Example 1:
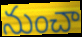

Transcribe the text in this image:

నుంచా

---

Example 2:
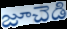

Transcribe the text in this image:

జూచెడి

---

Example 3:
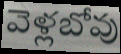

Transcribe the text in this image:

వెళ్లబోవు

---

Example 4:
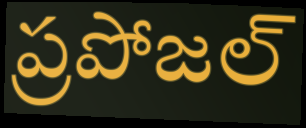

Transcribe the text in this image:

ప్రపోజల్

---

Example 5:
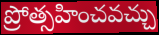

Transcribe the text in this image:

ప్రోత్సహించవచ్చు